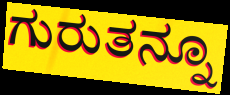
ಗುರುತನ್ನೂ